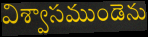
విశ్వాసముండెను